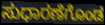
ಸುಧಾರಣೆಗೊಂಡ